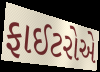
ફાઈટરોએ